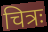
चित्रः